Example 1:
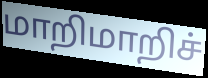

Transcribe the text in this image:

மாறிமாறிச்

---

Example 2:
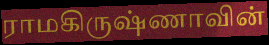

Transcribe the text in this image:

ராமகிருஷ்ணாவின்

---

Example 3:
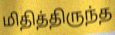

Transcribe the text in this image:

மிதித்திருந்த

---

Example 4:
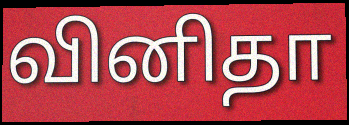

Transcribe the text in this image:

வினிதா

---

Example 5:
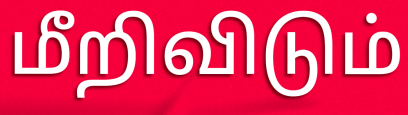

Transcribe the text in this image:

மீறிவிடும்